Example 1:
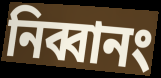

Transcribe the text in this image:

নিব্বানং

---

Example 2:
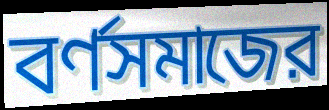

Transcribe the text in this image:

বর্ণসমাজের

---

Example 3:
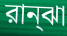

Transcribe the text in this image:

রান্ঝা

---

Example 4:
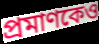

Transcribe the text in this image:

প্রমাণকেও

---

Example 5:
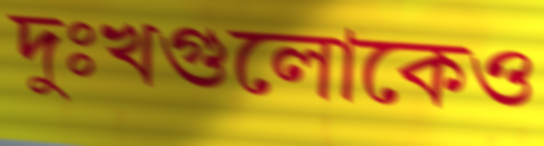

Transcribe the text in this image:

দুঃখগুলোকেও